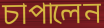
চাপালেন